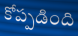
కోప్పడింది